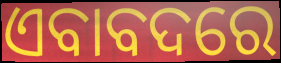
ଏବାବଦରେ